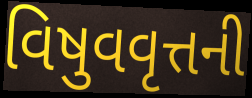
વિષુવવૃત્તની